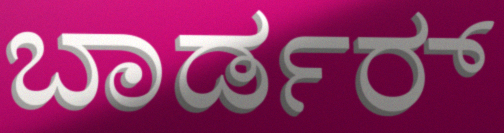
ಬಾರ್ಡರ್‍